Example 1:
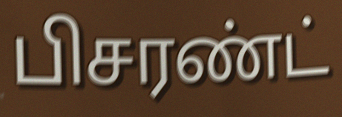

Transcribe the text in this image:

பிசரண்ட்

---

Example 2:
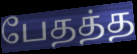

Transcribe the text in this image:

பேதத்த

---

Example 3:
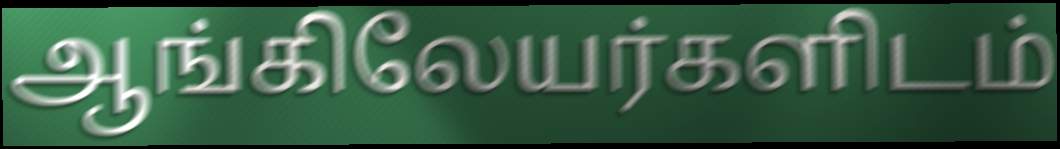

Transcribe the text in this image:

ஆங்கிலேயர்களிடம்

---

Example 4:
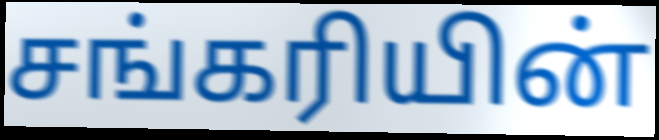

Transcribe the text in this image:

சங்கரியின்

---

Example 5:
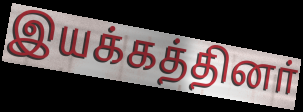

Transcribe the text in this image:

இயக்கத்தினர்